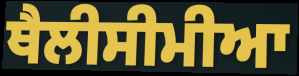
ਥੈਲੀਸੀਮੀਆ